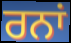
ਰਨਾਂ